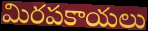
మిరపకాయలు